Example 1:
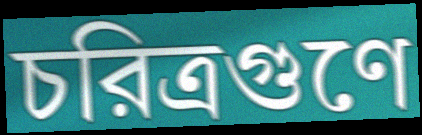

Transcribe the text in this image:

চরিত্রগুণে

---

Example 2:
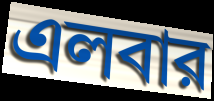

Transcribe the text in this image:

এলবার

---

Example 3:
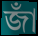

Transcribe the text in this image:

জাঁ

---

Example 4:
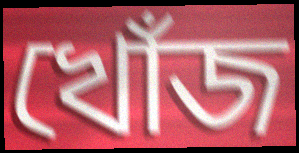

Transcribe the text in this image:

খোঁজ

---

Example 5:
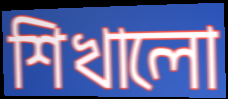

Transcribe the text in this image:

শিখালো